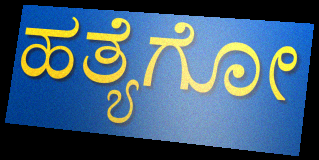
ಹತ್ಯೆಗೋ